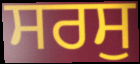
ਸਰਸੁ